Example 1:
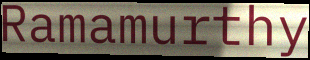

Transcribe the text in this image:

Ramamurthy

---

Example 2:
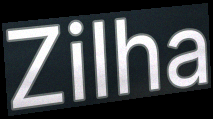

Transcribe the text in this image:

Zilha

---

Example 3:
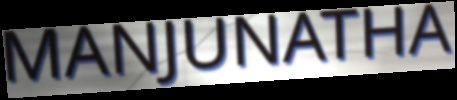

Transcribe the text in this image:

MANJUNATHA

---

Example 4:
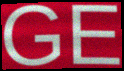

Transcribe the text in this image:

GE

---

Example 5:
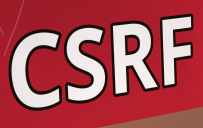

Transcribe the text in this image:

CSRF